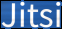
Jitsi